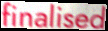
finalised